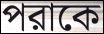
পরাকে